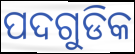
ପଦଗୁଡିକ